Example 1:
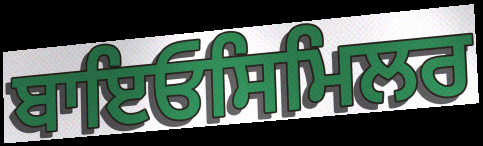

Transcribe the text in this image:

ਬਾਇਓਸਿਮਿਲਰ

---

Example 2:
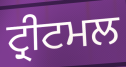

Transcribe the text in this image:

ਟ੍ਰੀਟਮਲ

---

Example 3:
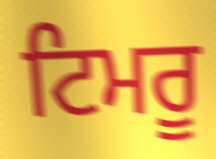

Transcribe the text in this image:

ਟਿਮਰੂ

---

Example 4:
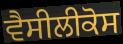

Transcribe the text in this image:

ਵੈਸੀਲੀਕੋਸ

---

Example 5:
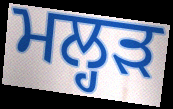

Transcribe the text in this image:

ਮਲ੍ਹੜ